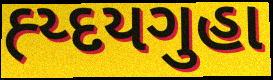
હ્ય્દયગુહા